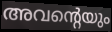
അവന്റെയും